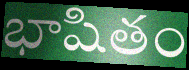
భాషితం